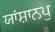
ਯਾਂਸ਼ਾਨਪੁ